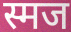
स्मज